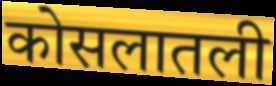
कोसलातली